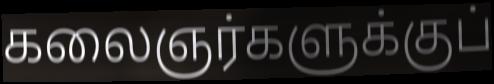
கலைஞர்களுக்குப்